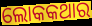
ଲୋକକଥାର